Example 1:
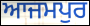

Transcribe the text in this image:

ਆਜਮਪੁਰ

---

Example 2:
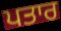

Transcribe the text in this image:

ਪਤਾਰ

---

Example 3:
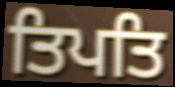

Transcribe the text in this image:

ਤਿਪਤਿ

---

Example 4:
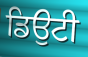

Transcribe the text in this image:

ਡਿਉਟੀ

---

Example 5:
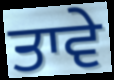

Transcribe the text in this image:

ਤਾਵੇ